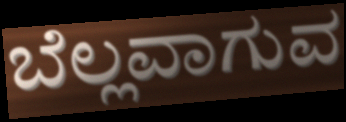
ಬೆಲ್ಲವಾಗುವ